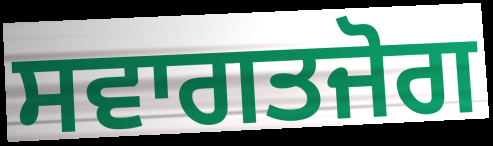
ਸਵਾਗਤਜੋਗ